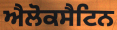
ਐਲੋਕਸੈਟਿਨ